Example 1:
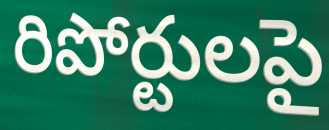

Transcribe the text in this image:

రిపోర్టులపై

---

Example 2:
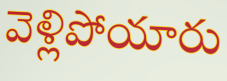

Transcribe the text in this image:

వెళ్లిపోయారు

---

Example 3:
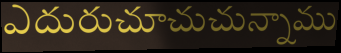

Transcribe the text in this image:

ఎదురుచూచుచున్నాము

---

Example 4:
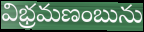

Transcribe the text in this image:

విభ్రమణంబును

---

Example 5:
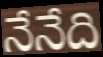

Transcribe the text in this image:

నేనేది